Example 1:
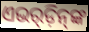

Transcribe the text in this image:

ଏଭର୍‍ଡ଼ିନ୍‌ଙ୍କ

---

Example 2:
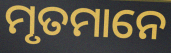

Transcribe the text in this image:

ମୃତମାନେ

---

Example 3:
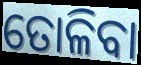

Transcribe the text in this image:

ତୋଳିବା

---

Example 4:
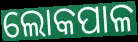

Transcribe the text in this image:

ଲୋକପାଳ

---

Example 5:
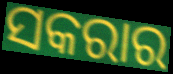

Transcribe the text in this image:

ସକରାର